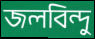
জলবিন্দু